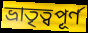
ভ্ৰাতৃত্বপূৰ্ণ